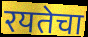
रयतेचा